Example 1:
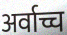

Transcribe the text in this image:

अर्वाच्च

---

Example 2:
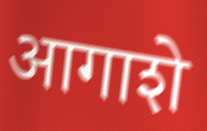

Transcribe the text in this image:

आगाशे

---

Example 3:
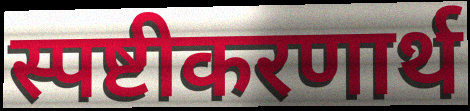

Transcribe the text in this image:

स्पष्टीकरणार्थ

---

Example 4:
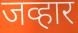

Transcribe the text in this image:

जव्हार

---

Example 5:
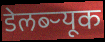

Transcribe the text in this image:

डेलब्ऱ्यूक